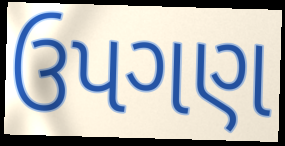
ઉપગણ